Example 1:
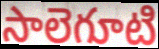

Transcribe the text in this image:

సాలెగూటి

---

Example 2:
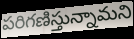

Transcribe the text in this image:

పరిగణిస్తున్నామని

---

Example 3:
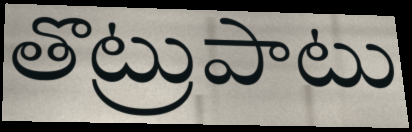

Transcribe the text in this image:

తొట్రుపాటు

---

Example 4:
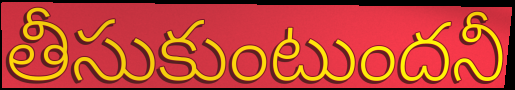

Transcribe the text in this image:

తీసుకుంటుందనీ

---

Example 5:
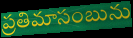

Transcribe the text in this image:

ప్రతిమాసంబును